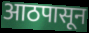
आठपासून